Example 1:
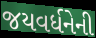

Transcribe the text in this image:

જયવર્ધનેની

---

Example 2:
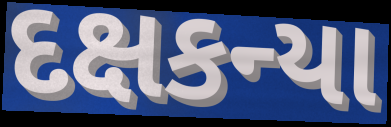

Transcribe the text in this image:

દક્ષકન્યા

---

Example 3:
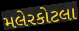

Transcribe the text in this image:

મલેરકોટલા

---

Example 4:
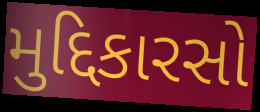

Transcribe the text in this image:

મુદ્દિકારસો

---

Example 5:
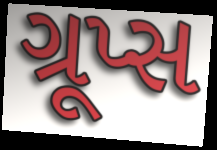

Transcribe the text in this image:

ગ્રૂપ્સ